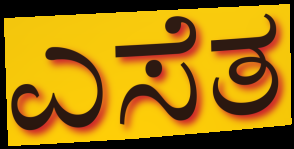
ಎಸೆತ